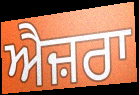
ਐਜ਼ਰਾ